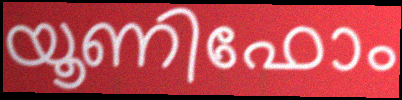
യൂണിഫോം